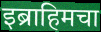
इब्राहिमचा